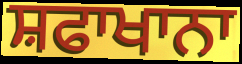
ਸ਼ਫਾਖਾਨਾ